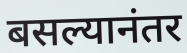
बसल्यानंतर